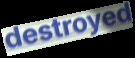
destroyed